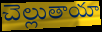
చెల్లుతాయా